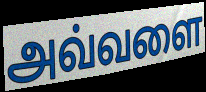
அவ்வளை